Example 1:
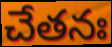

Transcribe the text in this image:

చేతనః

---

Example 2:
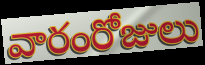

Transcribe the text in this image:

వారంరోజులు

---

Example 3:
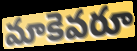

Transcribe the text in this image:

మాకెవరూ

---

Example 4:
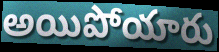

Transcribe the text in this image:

అయిపోయారు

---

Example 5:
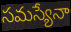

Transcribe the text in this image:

సమస్యేనా